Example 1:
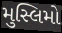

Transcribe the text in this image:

મુસ્લિમો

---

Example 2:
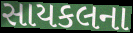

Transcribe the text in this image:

સાયકલના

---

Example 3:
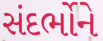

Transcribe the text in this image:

સંદર્ભોને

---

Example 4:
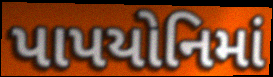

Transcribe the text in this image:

પાપયોનિમાં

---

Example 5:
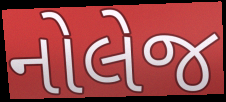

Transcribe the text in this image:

નોલેજ